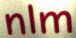
nlm